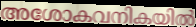
അശോകവനികയിൽ